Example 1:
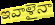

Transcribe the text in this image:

ఇవాళైనా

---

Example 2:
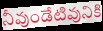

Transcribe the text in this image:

నీవుండేటివునికి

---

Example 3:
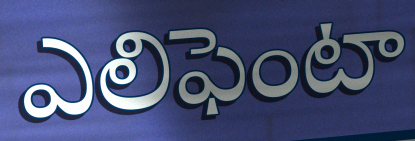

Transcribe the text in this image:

ఎలిఫెంటా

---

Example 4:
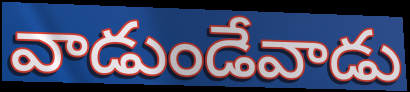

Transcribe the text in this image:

వాడుండేవాడు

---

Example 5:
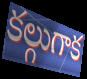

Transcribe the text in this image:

కల్గుగాక